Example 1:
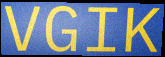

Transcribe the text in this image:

VGIK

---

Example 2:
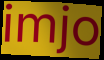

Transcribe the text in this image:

imjo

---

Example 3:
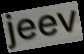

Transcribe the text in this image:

jeev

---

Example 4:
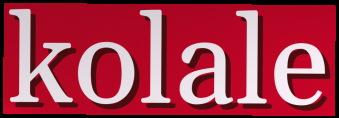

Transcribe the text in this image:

kolale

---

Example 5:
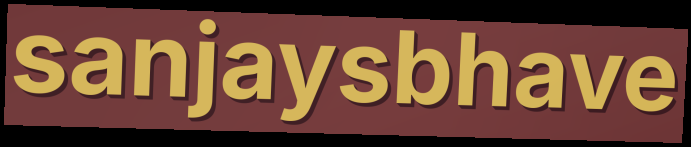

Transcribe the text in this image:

sanjaysbhave